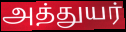
அத்துயர்